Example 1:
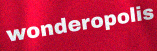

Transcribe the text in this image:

wonderopolis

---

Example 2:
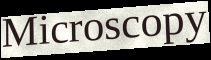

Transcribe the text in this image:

Microscopy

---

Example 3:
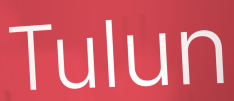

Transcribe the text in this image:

Tulun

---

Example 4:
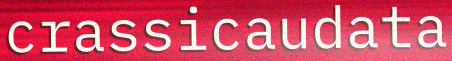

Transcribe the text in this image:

crassicaudata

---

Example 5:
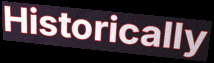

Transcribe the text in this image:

Historically